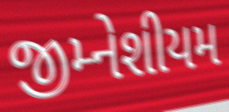
જીમ્નેશીયમ